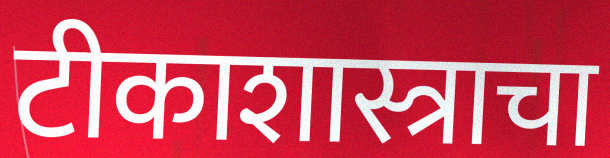
टीकाशास्त्राचा